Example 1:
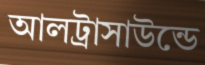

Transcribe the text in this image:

আলট্রাসাউন্ডে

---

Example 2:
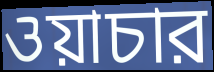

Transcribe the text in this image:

ওয়াচার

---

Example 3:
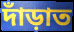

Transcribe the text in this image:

দাঁড়াত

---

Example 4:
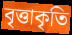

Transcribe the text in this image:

বৃত্তাকৃতি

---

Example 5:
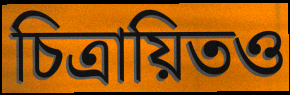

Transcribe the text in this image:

চিত্রায়িতও